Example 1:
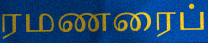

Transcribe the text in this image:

ரமணரைப்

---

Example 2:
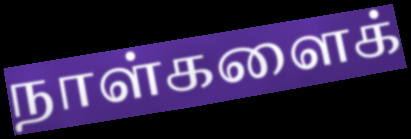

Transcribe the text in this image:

நாள்களைக்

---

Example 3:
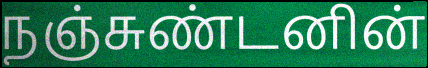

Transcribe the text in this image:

நஞ்சுண்டனின்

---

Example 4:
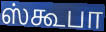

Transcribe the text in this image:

ஸ்கூபா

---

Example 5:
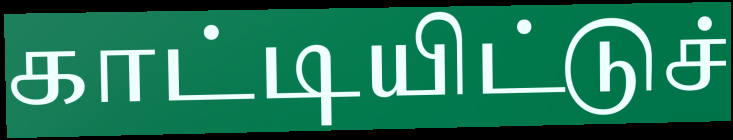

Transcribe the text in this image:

காட்டியிட்டுச்